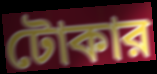
টোকার